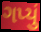
ગપ્યું